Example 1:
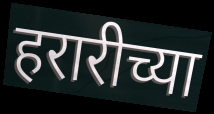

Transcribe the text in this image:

हरारीच्या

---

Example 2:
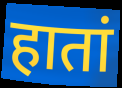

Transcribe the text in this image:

हातां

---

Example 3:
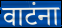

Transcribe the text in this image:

वाटंना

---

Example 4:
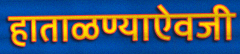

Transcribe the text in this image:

हाताळण्याऐवजी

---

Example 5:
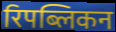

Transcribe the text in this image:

रिपब्लिकन